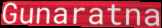
Gunaratna